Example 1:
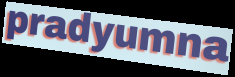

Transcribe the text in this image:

pradyumna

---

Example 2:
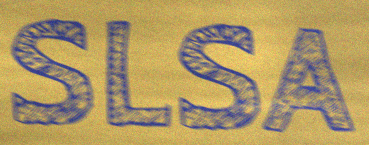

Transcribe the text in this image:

SLSA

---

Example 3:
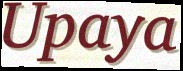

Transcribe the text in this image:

Upaya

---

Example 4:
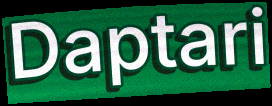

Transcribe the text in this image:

Daptari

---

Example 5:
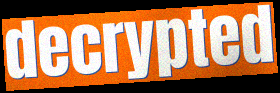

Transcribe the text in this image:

decrypted